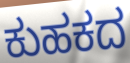
ಕುಹಕದ